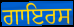
ਗਾਇਰਸ